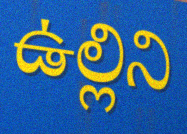
ఉల్లిని